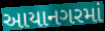
આયાનગરમાં